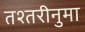
तश्तरीनुमा